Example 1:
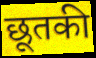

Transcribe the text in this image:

छूतकी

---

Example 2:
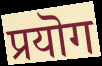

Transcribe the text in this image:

प्रयॊग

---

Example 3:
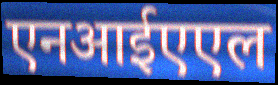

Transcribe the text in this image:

एनआईएएल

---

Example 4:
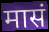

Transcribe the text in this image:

मासं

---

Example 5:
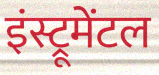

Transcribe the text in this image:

इंस्ट्रूमेंटल